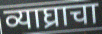
व्याघ्राचा